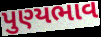
પુણ્યભાવ